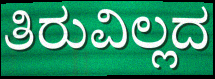
ತಿರುವಿಲ್ಲದ